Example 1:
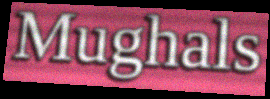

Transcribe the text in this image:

Mughals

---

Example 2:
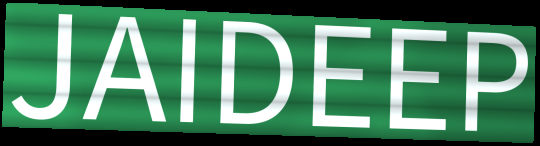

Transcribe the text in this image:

JAIDEEP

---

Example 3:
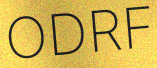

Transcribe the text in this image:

ODRF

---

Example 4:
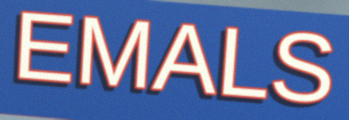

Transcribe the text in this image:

EMALS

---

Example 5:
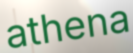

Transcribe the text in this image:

athena